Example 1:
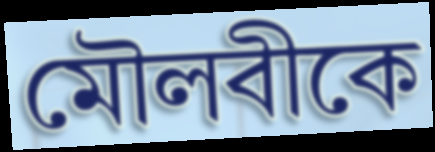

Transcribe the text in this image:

মৌলবীকে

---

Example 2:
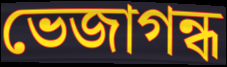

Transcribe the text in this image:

ভেজাগন্ধ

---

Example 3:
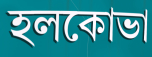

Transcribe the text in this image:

হলকোভা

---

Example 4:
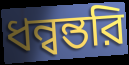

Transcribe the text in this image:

ধন্বন্তরি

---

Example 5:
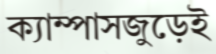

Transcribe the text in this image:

ক্যাম্পাসজুড়েই